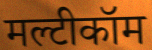
मल्टीकॉम